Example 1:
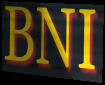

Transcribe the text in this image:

BNI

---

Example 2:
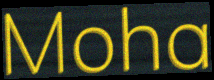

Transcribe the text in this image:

Moha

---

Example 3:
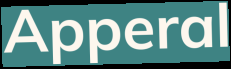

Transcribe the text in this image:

Apperal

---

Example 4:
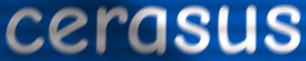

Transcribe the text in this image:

cerasus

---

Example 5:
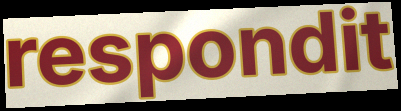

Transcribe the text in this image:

respondit